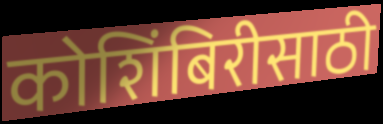
कोशिंबिरीसाठी